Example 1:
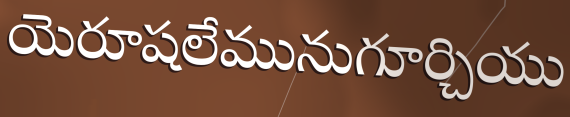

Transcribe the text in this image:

యెరూషలేమునుగూర్చియు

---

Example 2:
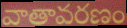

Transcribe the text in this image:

వాతావరణం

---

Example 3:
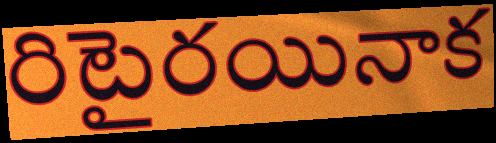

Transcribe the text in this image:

రిటైరయినాక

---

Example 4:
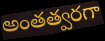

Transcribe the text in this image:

అంతత్వరగా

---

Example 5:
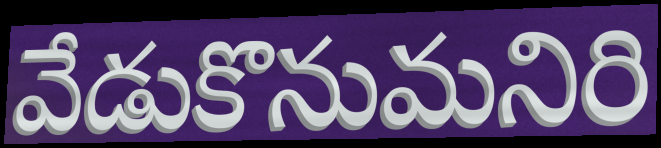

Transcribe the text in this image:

వేడుకొనుమనిరి